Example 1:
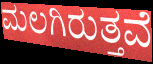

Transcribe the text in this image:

ಮಲಗಿರುತ್ತವೆ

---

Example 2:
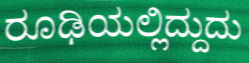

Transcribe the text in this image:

ರೂಢಿಯಲ್ಲಿದ್ದುದು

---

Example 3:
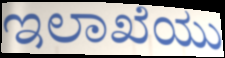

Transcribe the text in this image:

ಇಲಾಖೆಯು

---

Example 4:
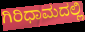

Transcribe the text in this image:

ಗಿರಿಧಾಮದಲ್ಲಿ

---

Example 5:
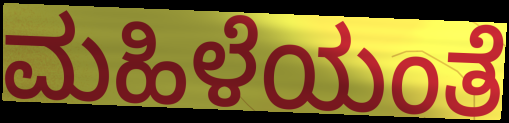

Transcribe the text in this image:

ಮಹಿಳೆಯಂತೆ